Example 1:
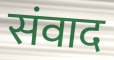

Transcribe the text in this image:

संवाद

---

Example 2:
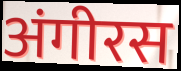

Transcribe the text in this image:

अंगीरस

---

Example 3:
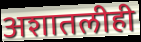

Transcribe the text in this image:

अशातलीही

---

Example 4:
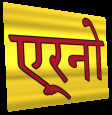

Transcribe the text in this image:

एर्नो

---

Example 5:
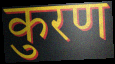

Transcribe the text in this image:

कुरण